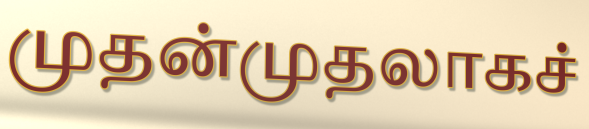
முதன்முதலாகச்